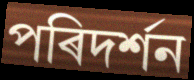
পৰিদৰ্শন